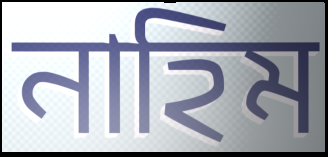
নাহিম